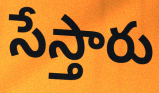
సేస్తారు